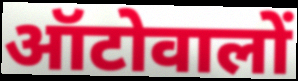
ऑटोवालों